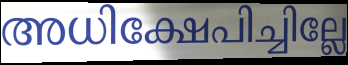
അധിക്ഷേപിച്ചില്ലേ